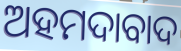
ଅହମଦାବାଦ